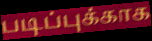
படிப்புக்காக